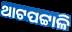
ଥାଟପଟ୍ଟାଳି